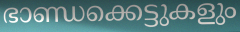
ഭാണ്ഡക്കെട്ടുകളും